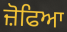
ਜ਼ੋਫਿਆ